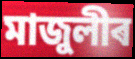
মাজুলীৰ